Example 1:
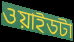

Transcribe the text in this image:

ওয়াইডটা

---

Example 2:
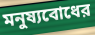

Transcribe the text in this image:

মনুষ্যবোধের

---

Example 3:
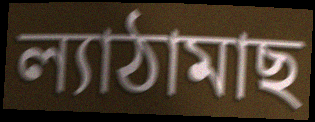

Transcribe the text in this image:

ল্যাঠামাছ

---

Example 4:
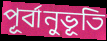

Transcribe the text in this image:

পূর্বানুভূতি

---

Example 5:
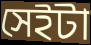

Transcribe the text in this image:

সেইটা